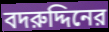
বদরুদ্দিনের